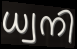
ധ്വനി